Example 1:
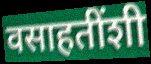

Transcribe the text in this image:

वसाहतींशी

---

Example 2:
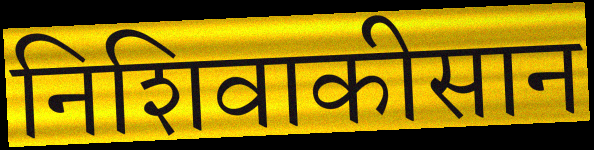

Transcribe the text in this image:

निशिवाकीसान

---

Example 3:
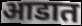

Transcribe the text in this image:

आडात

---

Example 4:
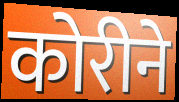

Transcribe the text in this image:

कोरीने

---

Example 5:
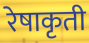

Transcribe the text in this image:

रेषाकृती